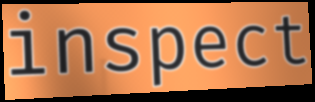
inspect